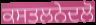
ਕਸਤਲਨੇਦਲੋ